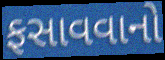
ફસાવવાનો